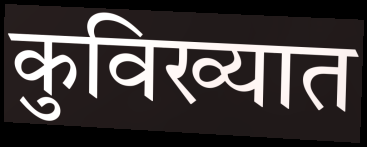
कुविख्यात